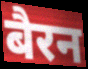
बैरन